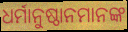
ଧର୍ମାନୁଷ୍ଠାନମାନଙ୍କ